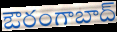
ఔరంగాబాద్